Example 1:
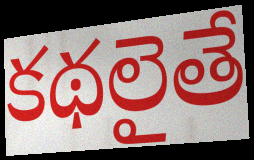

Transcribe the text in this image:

కథలైతే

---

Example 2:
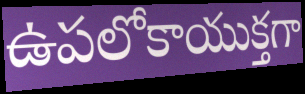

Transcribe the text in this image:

ఉపలోకాయుక్తగా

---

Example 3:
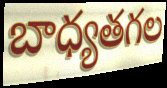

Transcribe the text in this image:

బాధ్యతగల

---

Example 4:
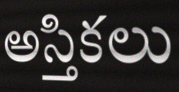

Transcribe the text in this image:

అస్తికలు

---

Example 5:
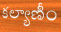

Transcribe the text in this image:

కల్యాణీం